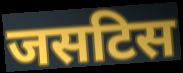
जसटिस